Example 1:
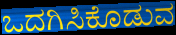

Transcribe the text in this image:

ಒದಗಿಸಿಕೊಡುವ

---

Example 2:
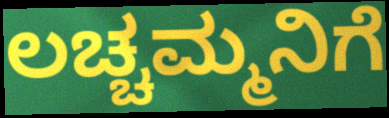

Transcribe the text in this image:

ಲಚ್ಚಮ್ಮನಿಗೆ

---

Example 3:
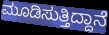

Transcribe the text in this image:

ಮೂಡಿಸುತ್ತಿದ್ದಾನೆ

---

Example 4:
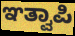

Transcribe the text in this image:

ಞತ್ವಾಪಿ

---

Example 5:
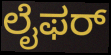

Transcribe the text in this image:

ಲೈಫರ್